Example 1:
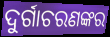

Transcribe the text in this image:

ଦୁର୍ଗାଚରଣଙ୍କର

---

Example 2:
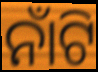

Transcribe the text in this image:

ନାଁଟି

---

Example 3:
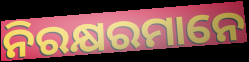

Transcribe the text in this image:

ନିରକ୍ଷରମାନେ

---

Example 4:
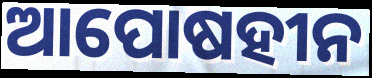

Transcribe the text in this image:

ଆପୋଷହୀନ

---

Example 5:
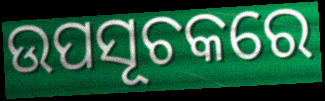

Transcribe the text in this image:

ଉପସୂଚକରେ